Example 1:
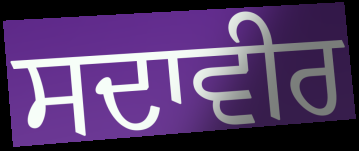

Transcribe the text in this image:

ਸਦਾਵੀਰ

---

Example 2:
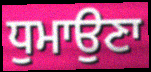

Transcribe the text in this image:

ਧੁਮਾਉਣਾ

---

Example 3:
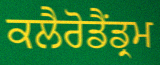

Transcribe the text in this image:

ਕਲੈਰੋਡੈਂਡ੍ਰਮ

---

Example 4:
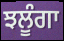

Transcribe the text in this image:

ਝਲੂੰਗਾ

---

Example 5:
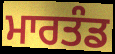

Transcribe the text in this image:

ਮਾਰਤੰਡ